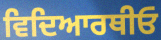
ਵਿਦਿਆਰਥੀਓ